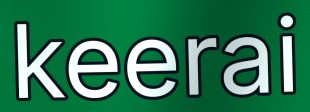
keerai